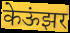
केऊंझर